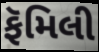
ફૅમિલી